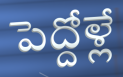
పెద్దోళ్లే